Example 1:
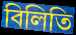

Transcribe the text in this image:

বিলিতি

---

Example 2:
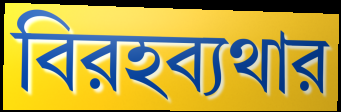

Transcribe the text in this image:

বিরহব্যথার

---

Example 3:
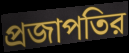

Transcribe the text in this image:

প্রজাপতির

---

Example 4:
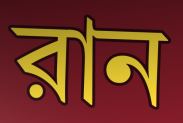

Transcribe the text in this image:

রান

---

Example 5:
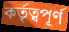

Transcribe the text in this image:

কর্তৃত্বপূর্ণ